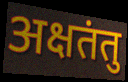
अक्षतंतु